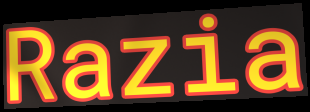
Razia